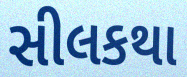
સીલકથા